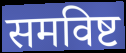
समविष्ट